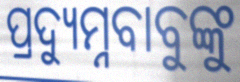
ପ୍ରଦ୍ୟୁମ୍ନବାବୁଙ୍କୁ